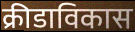
क्रीडाविकास